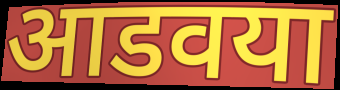
आडवया